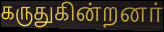
கருதுகின்றனர்